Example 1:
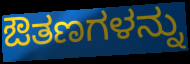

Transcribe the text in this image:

ಔತಣಗಳನ್ನು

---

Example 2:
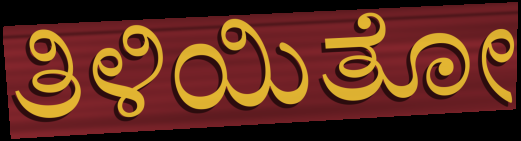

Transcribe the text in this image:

ತಿಳಿಯಿತೋ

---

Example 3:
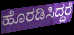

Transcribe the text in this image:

ಹೊರಡಿಸಿದ್ದರೆ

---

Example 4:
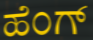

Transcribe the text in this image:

ಹೆಂಗ್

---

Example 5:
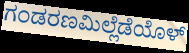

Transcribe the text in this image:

ಗಂಡರಣಮಿಲ್ಲೆಡೆಯೊಳ್